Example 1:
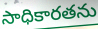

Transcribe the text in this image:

సాధికారతను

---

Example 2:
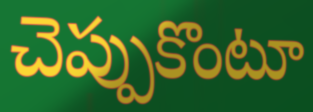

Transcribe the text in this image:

చెప్పుకొంటూ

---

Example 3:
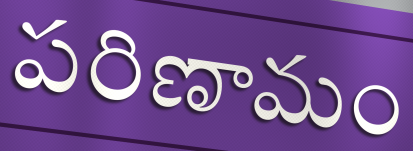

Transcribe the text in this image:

పరిణామం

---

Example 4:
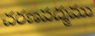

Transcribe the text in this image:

చరణపద్మము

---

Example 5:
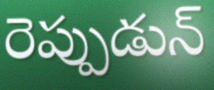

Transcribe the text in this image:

రెప్పుడున్